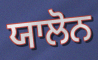
ਯਾਲੋਨ